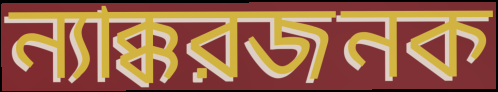
ন্যাক্করজনক